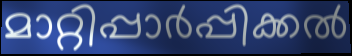
മാറ്റിപ്പാർപ്പിക്കൽ